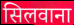
सिलवाना